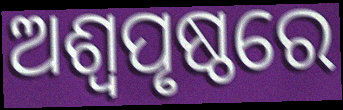
ଅଶ୍ଵପୃଷ୍ଠରେ